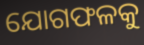
ଯୋଗଫଳକୁ